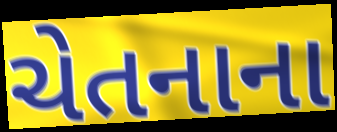
ચેતનાના